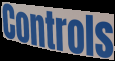
Controls